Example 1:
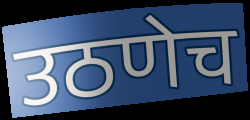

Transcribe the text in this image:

उठणेच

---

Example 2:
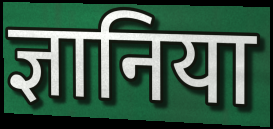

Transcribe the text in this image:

ज्ञानिया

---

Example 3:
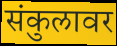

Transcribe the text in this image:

संकुलावर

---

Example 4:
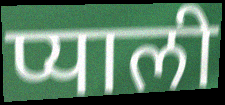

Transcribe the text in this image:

प्याली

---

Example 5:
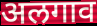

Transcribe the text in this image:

अलगाव